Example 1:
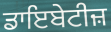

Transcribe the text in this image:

ਡਾਇਬੇਟੀਜ਼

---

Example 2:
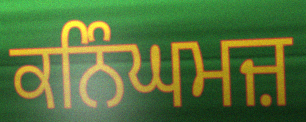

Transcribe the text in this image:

ਕਨਿੰਘਮਜ਼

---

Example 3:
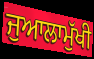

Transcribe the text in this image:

ਜੁਆਲਾਮੁੱਖੀ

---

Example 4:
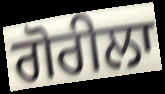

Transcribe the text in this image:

ਗੋਰੀਲਾ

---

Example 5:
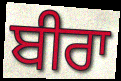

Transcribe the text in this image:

ਬੀਰਾ